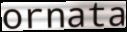
ornata